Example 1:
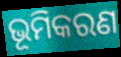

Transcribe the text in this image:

ଭୂମିକରଣ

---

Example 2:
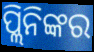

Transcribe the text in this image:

ପ୍ଲିନିଙ୍କର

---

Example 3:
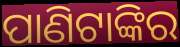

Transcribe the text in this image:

ପାଣିଟାଙ୍କିର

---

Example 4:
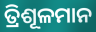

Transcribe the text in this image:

ତ୍ରିଶୂଳମାନ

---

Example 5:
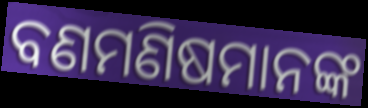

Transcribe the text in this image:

ବଣମଣିଷମାନଙ୍କ